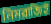
নিমরাজিই